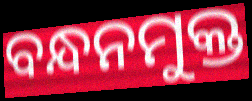
ବନ୍ଧନମୁକ୍ତ